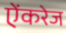
ऐंकरेज